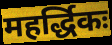
महर्द्धिकः